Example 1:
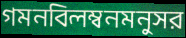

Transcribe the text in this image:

গমনবিলম্বনমনুসর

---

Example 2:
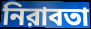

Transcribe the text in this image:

নিরাবতা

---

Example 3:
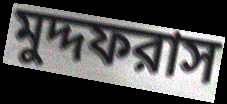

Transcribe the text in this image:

মুদ্দফরাস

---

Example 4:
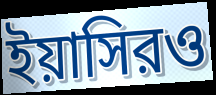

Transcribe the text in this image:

ইয়াসিরও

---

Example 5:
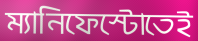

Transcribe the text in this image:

ম্যানিফেস্টোতেই